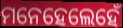
ମନେହେଲେହେଁ